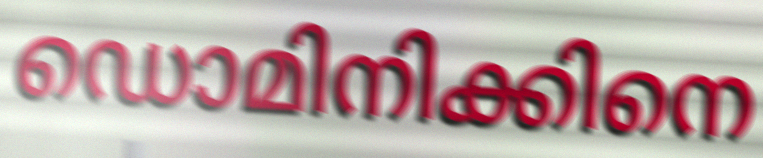
ഡൊമിനിക്കിനെ